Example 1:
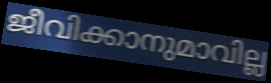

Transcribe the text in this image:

ജീവിക്കാനുമാവില്ല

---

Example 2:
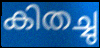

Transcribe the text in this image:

കിതച്ചു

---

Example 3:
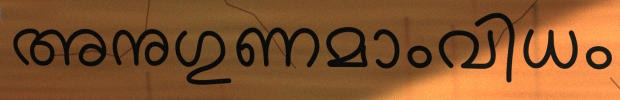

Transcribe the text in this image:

അനുഗുണമാംവിധം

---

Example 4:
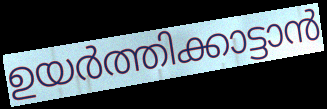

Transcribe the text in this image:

ഉയർത്തിക്കാട്ടാൻ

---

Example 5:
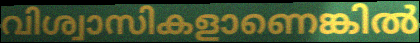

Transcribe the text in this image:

വിശ്വാസികളാണെങ്കിൽ